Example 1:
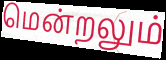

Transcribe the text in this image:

மென்றலும்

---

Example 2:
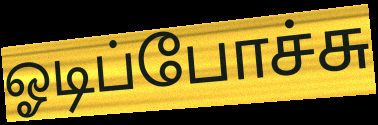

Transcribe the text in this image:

ஓடிப்போச்சு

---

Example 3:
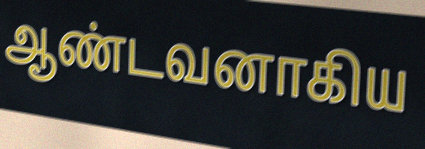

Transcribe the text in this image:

ஆண்டவனாகிய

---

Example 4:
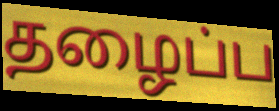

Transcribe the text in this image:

தழைப்ப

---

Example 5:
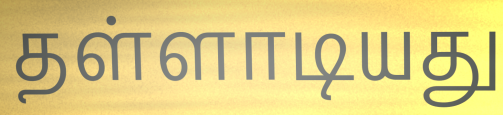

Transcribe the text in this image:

தள்ளாடியது